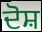
ਦੋਸ਼